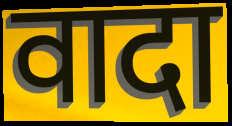
वादा